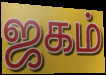
ஜகம்